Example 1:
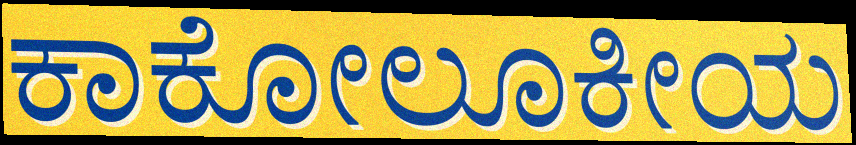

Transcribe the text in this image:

ಕಾಕೋಲೂಕೀಯ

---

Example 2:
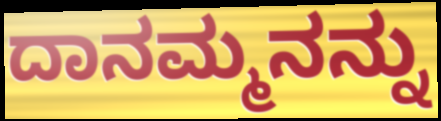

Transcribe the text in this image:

ದಾನಮ್ಮನನ್ನು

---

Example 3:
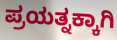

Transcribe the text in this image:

ಪ್ರಯತ್ನಕ್ಕಾಗಿ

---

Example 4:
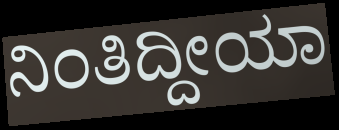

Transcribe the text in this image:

ನಿಂತಿದ್ದೀಯಾ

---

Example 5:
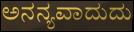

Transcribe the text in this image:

ಅನನ್ಯವಾದುದು